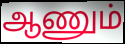
ஆணும்